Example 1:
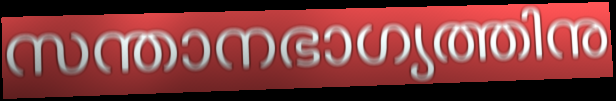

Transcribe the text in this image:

സന്താനഭാഗ്യത്തിനു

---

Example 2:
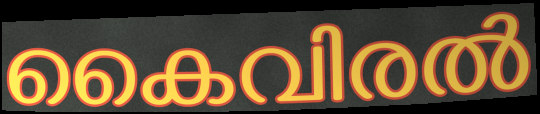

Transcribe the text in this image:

കൈവിരൽ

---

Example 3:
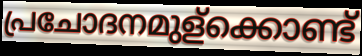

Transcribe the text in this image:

പ്രചോദനമുള്ക്കൊണ്ട്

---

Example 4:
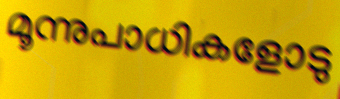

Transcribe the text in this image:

മൂന്നുപാധികളോടു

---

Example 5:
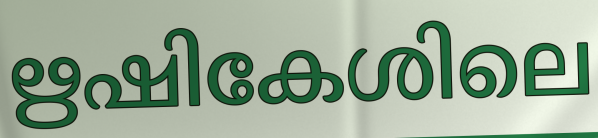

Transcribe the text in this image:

ഋഷികേശിലെ